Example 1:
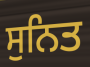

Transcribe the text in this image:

ਸੁਨਿਤ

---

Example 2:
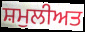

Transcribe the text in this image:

ਸ਼ਮੁਲੀਅਤ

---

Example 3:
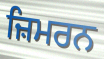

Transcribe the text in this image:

ਜ਼ਿਮਰਨ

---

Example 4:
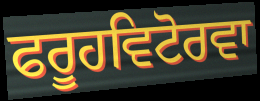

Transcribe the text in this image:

ਫਰੂਹਵਿਟੋਰਵਾ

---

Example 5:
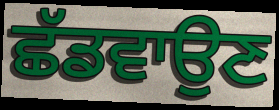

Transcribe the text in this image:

ਛੱਡਵਾਉਣ